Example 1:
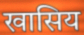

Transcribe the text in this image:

खासिय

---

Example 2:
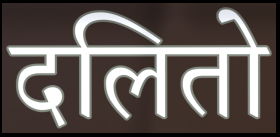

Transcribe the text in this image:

दलितो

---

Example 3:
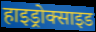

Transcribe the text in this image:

हाइड्रोक्साइड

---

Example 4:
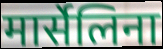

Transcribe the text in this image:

मार्सेलिना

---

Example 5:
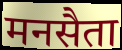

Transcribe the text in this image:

मनसैता